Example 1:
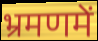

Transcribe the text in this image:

भ्रमणमें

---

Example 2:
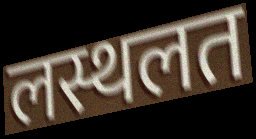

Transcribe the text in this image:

लस्थलत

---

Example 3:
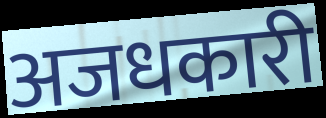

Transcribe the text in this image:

अजधकारी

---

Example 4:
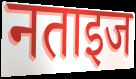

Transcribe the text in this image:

नताइज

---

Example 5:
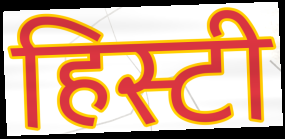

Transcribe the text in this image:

हिस्टी